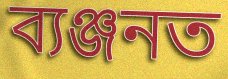
ব্যঞ্জনত